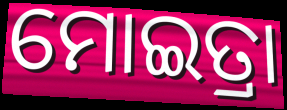
ମୋଇତ୍ରା